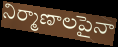
నిర్మాణాలపైనా